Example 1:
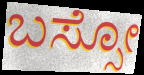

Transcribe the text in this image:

ಬಸ್ಸೋ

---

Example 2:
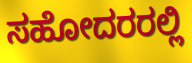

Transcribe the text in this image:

ಸಹೋದರರಲ್ಲಿ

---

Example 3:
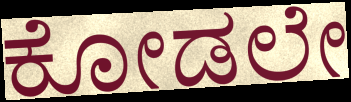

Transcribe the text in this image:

ಕೋಡಲೇ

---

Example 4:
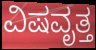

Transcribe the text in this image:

ವಿಷವೃತ್ತ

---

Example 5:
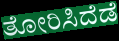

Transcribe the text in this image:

ತೋರಿಸಿದೆಡೆ